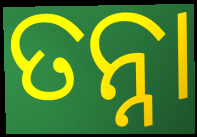
ତନ୍ନା